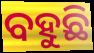
ବହୁଛି